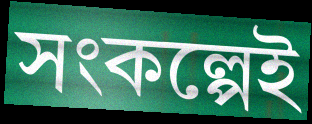
সংকল্পেই